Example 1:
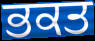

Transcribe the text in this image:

ਭਕਤ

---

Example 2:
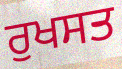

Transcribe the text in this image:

ਰੁਖਸਤ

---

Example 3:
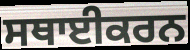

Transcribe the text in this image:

ਸਥਾਈਕਰਨ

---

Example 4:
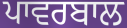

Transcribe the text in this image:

ਪਾਵਰਬਾਲ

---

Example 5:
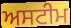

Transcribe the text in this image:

ਅਸਟੀਮ